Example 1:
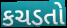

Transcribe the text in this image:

કચડતો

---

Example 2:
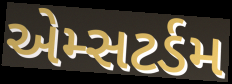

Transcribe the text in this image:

એમ્સટર્ડમ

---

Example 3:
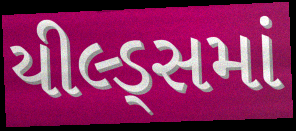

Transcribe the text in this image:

યીલ્ડ્સમાં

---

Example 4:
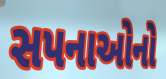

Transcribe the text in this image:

સપનાઓનો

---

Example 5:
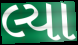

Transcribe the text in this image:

લ્યા